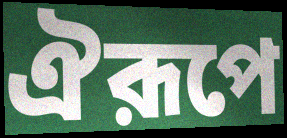
ঐরূপে